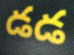
డడ